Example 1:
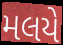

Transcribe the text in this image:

મલયે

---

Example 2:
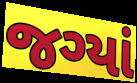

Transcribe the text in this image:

જગ્યાં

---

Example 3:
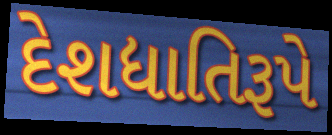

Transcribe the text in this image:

દેશદ્યાતિરૂપે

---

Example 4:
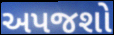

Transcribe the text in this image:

અપજશો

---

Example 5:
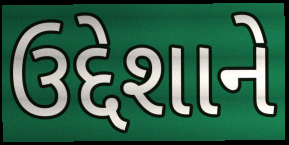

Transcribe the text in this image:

ઉદ્દેશાને